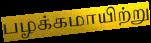
பழக்கமாயிற்று